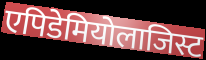
एपिडेमियोलाजिस्ट